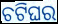
ଚଟିଘର